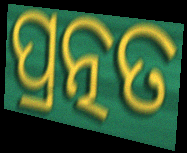
ପ୍ରତ୍ନତ